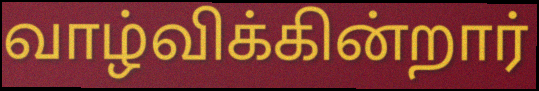
வாழ்விக்கின்றார்